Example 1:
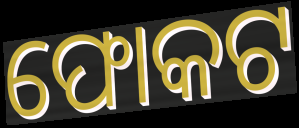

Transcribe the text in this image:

ଫୋକଟ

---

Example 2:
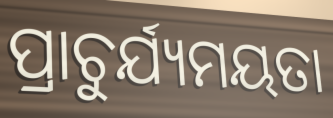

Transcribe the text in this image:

ପ୍ରାଚୁର୍ଯ୍ୟମୟତା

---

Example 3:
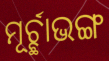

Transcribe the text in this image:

ମୂର୍ଚ୍ଛାଭଙ୍ଗ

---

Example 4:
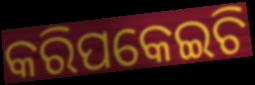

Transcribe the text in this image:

କରିପକେଇଚି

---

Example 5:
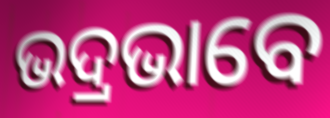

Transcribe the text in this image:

ଭଦ୍ରଭାବେ